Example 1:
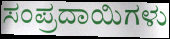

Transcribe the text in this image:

ಸಂಪ್ರದಾಯಿಗಳು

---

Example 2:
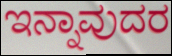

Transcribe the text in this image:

ಇನ್ನಾವುದರ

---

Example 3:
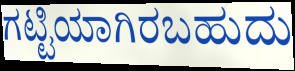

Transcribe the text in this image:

ಗಟ್ಟಿಯಾಗಿರಬಹುದು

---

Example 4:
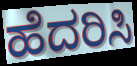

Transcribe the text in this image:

ಹೆದರಿಸಿ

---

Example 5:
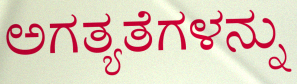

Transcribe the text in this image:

ಅಗತ್ಯತೆಗಳನ್ನು